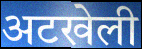
अटखेली